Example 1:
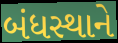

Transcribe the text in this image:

બંધસ્થાને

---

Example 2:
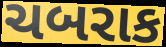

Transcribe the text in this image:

ચબરાક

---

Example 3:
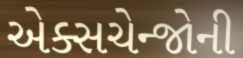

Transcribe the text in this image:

એક્સચેન્જોની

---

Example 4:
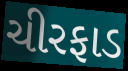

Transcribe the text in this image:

ચીરફાડ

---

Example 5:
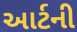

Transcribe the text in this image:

આર્ટની